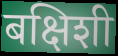
बक्षिशी